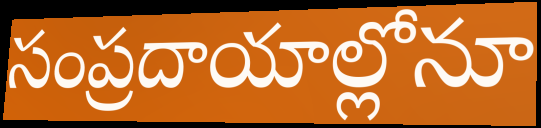
సంప్రదాయాల్లోనూ